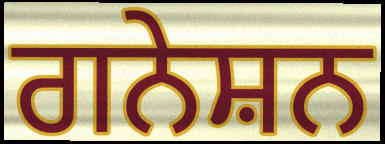
ਗਨੇਸ਼ਨ